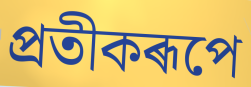
প্ৰতীকৰূপে